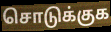
சொடுக்குக